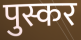
पुस्कर